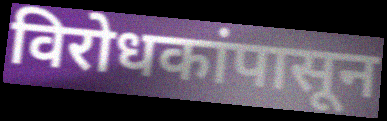
विरोधकांपासून